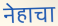
नेहाचा